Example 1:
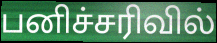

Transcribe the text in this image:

பனிச்சரிவில்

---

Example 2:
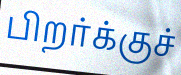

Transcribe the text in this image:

பிறர்க்குச்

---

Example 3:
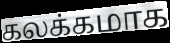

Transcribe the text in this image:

கலக்கமாக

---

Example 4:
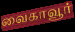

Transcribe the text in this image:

வைகாவூர்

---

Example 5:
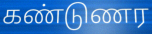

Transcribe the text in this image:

கண்டுணர